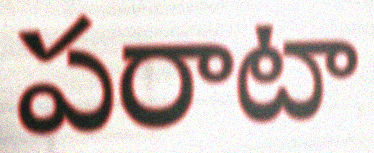
పరాటా